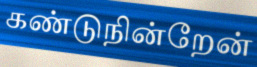
கண்டுநின்றேன்